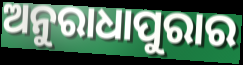
ଅନୁରାଧାପୁରାର